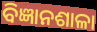
ବିଜ୍ଞାନଶାଳା